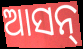
ଆସନ୍